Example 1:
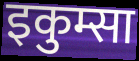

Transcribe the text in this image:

इकुम्सा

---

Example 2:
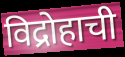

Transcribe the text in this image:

विद्रोहाची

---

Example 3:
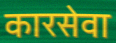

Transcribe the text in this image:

कारसेवा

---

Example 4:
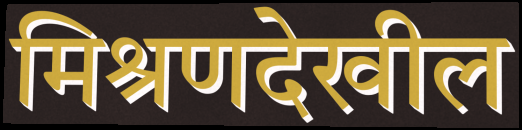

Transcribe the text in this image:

मिश्रणदेखील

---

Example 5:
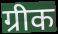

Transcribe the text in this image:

ग्रीक